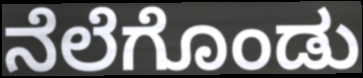
ನೆಲೆಗೊಂಡು